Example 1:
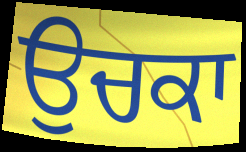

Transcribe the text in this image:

ਉਚਕਾ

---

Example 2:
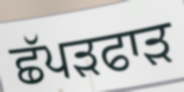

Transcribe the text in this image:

ਛੱਪੜਫਾੜ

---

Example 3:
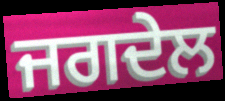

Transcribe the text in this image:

ਜਗਦੇਲ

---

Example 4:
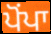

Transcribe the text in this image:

ਪੋਂਪਾ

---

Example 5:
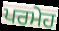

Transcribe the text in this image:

ਪਰਮੇਹ